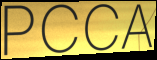
PCCA